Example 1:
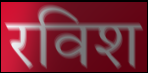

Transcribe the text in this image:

रविश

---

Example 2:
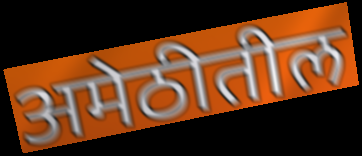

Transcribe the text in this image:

अमेठीतील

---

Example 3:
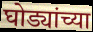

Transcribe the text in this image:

घोड्यांच्या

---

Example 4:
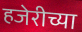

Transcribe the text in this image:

हजेरीच्या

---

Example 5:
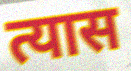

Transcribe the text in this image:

त्यास